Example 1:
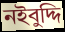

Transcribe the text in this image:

নইবুদ্দি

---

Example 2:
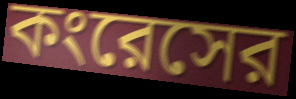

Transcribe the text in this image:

কংরেসের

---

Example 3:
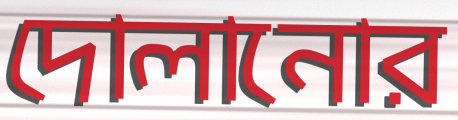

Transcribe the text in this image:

দোলানোর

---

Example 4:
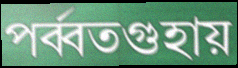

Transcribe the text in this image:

পর্ব্বতগুহায়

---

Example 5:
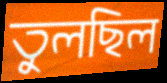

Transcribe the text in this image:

তুলছিল